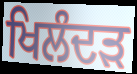
ਖਿਲੰਦੜ